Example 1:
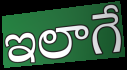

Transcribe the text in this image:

ఇలాగే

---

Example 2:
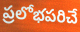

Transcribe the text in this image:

ప్రలోభపరిచే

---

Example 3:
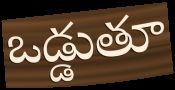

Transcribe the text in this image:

ఒడ్డుతూ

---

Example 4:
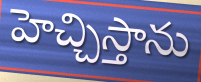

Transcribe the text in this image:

హెచ్చిస్తాను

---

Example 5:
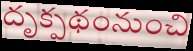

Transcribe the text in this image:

దృక్పథంనుంచి